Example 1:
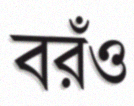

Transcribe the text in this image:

বরঁও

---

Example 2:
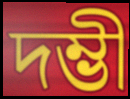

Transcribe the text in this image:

দম্ভী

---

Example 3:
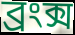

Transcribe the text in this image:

ব্রংক্স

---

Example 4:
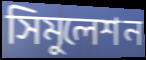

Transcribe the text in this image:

সিমুলেশন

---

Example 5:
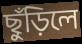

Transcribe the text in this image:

ছুঁড়িলে